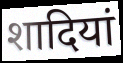
शादियां